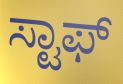
ಸ್ಟಾಫ್